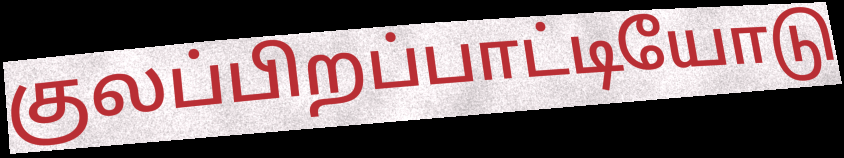
குலப்பிறப்பாட்டியோடு